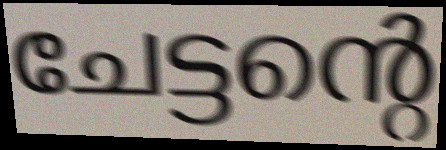
ചേട്ടന്റെ